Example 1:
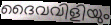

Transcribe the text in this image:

ദൈവവിളിയും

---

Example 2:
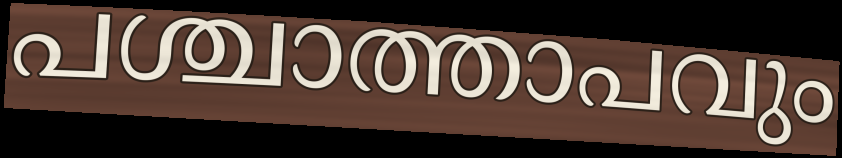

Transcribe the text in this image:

പശ്ചാത്താപവും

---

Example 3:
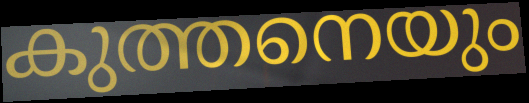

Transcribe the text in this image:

കുത്തനെയും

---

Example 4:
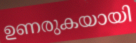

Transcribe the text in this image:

ഉണരുകയായി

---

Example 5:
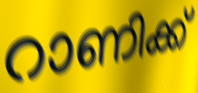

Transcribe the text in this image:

റാണിക്ക്